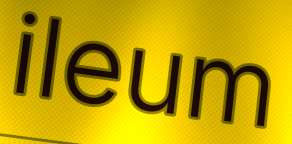
ileum